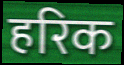
हरिक